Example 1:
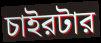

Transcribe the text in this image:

চাইরটার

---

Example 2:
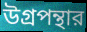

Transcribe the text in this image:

উগ্রপন্থার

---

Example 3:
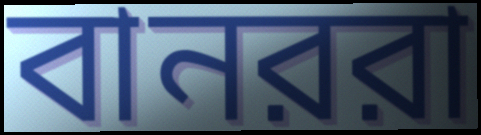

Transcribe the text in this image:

বানররা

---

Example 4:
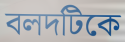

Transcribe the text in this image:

বলদটিকে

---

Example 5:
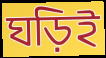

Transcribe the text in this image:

ঘড়িই